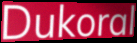
Dukoral